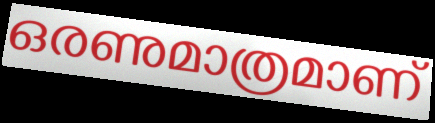
ഒരണുമാത്രമാണ്